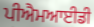
ਪੀਐਮਆਈਡੀ